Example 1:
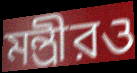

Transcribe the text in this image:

মন্ত্রীরও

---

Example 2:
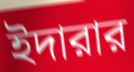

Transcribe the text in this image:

ইদারার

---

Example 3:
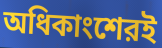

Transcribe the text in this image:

অধিকাংশেরই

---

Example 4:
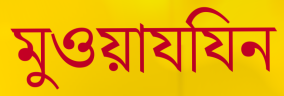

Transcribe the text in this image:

মুওয়াযযিন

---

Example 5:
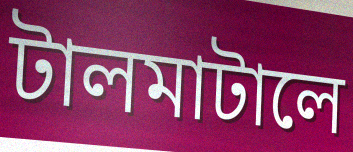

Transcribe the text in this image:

টালমাটালে